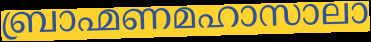
ബ്രാഹ്മണമഹാസാലാ